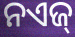
ନଏଜ୍